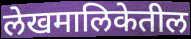
लेखमालिकेतील